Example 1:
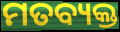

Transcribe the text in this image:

ମତବ୍ୟକ୍ତ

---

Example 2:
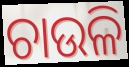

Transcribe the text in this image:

ଚାଉଳି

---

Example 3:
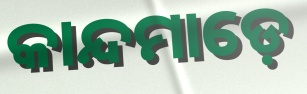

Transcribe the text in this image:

କାନ୍ଦମାଡ଼େ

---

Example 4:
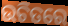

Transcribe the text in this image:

ଉଚିତରେ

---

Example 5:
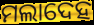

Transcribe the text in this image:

ମଲାଦେହ